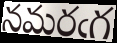
నమరఁగ